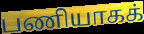
பணியாகக்